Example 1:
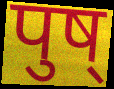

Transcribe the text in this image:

पुष्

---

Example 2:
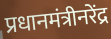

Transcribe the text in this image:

प्रधानमंत्रीनरेंद्र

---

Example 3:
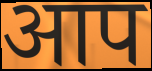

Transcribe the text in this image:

आप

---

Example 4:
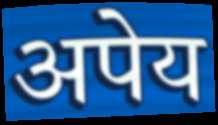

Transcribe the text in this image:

अपेय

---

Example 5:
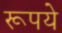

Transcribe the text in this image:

रूपये